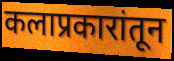
कलाप्रकारांतून